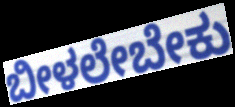
ಬೀಳಲೇಬೇಕು